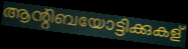
ആന്റിബയോട്ടിക്കുകള്